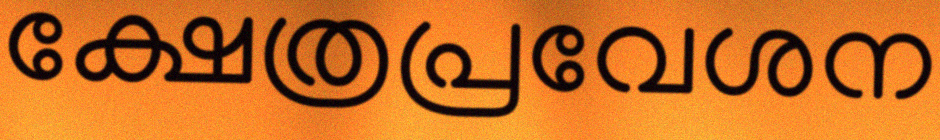
ക്ഷേത്രപ്രവേശന